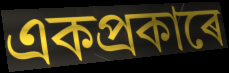
একপ্ৰকাৰে